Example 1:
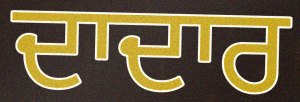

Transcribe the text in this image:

ਦਾਦਾਰ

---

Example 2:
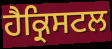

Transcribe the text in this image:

ਹੈਕ੍ਰਿਸਟਲ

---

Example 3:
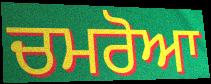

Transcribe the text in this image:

ਚਮਰੋਆ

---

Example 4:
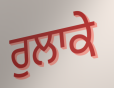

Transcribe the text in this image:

ਰੁਲਾਕੇ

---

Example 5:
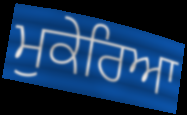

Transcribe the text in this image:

ਮੁਕੇਰਿਆ